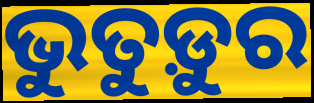
ଭୁତୁଡ଼ୁର